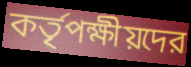
কর্তৃপক্ষীয়দের